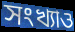
সংখ্যাও